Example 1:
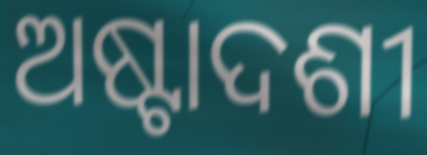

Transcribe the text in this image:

ଅଷ୍ଟାଦଶୀ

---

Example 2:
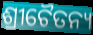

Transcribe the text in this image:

ଶ୍ରୀଚୈତନ୍ୟ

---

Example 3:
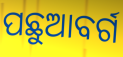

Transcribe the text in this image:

ପଛୁଆବର୍ଗ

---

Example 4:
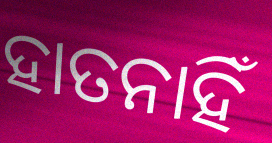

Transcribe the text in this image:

ହାତନାହିଁ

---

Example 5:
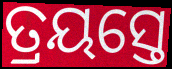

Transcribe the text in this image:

ତ୍ରୟସ୍ତେ